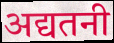
अद्यतनी